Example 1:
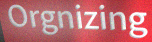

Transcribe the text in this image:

Orgnizing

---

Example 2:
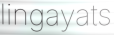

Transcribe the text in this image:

lingayats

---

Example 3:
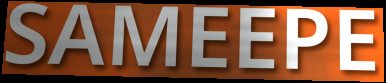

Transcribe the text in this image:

SAMEEPE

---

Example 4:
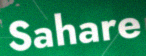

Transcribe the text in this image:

Sahare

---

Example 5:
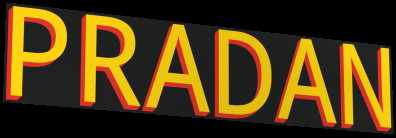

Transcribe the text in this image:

PRADAN